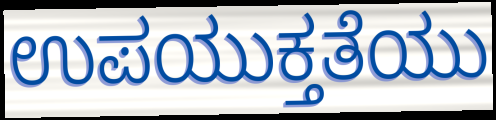
ಉಪಯುಕ್ತತೆಯು